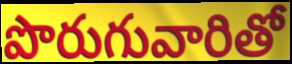
పొరుగువారితో